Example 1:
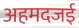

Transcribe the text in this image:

अहमदजई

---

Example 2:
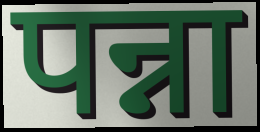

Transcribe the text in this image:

पन्ना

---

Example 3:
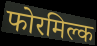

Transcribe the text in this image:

फोरमिल्क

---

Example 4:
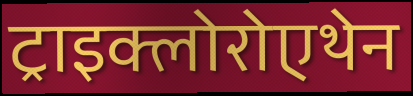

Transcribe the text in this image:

ट्राइक्लोरोएथेन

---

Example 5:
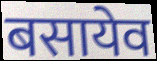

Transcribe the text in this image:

बसायेव